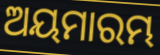
ଅୟମାରମ୍ଭ